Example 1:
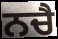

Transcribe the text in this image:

ਨਚੈ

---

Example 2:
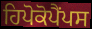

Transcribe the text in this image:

ਹਿਪੋਕੋਪੈਂਪਸ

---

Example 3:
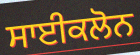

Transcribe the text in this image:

ਸਾਈਕਲੋਨ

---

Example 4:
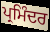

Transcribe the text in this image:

ਪ੍ਰਮਿੰਦਰ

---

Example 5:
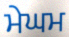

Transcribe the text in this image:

ਮੇਘਮ